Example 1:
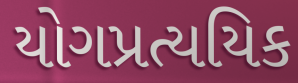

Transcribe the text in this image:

યોગપ્રત્યયિક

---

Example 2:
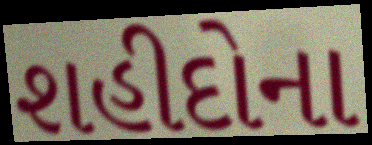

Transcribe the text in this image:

શહીદોના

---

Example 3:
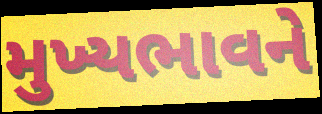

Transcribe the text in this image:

મુખ્યભાવને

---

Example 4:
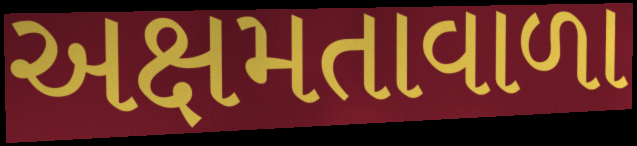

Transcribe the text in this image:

અક્ષમતાવાળા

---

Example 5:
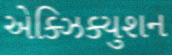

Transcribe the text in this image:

એક્ઝિક્યુશન